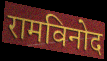
रामविनोद